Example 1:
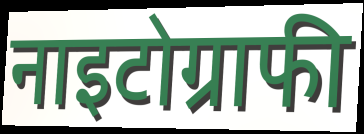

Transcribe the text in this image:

नाइटोग्राफी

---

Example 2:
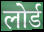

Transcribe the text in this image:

लोर्ड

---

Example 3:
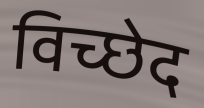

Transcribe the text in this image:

विच्छेद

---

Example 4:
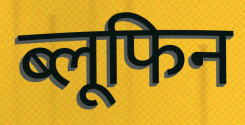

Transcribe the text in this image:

ब्लूफिन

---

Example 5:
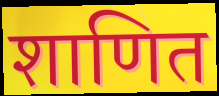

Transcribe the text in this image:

शाणित